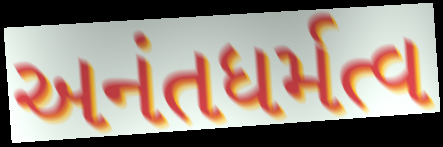
અનંતધર્મત્વ